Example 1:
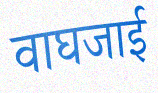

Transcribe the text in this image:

वाघजाई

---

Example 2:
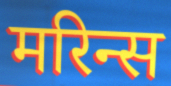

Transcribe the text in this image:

मरिन्स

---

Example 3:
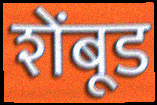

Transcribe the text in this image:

शेंबूड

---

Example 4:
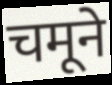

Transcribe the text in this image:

चमूने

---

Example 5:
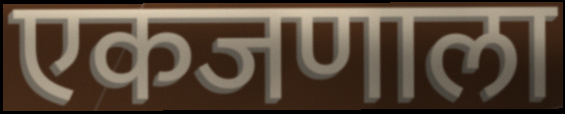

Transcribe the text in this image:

एकजणाला